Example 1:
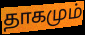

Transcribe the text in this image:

தாகமும்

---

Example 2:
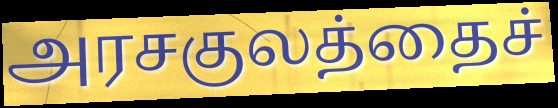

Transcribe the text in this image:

அரசகுலத்தைச்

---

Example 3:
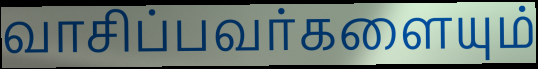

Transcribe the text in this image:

வாசிப்பவர்களையும்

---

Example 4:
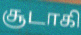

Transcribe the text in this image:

சூடாகி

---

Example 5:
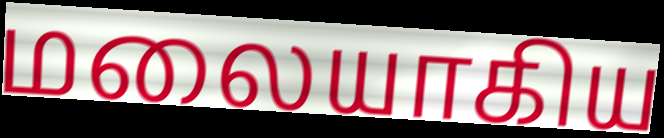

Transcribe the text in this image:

மலையாகிய